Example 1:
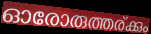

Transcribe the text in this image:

ഓരോരുത്തര്ക്കും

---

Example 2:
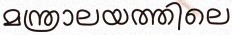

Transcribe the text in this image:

മന്ത്രാലയത്തിലെ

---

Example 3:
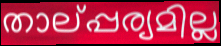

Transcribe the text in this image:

താല്പ്പര്യമില്ല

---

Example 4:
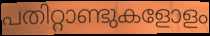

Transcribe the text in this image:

പതിറ്റാണ്ടുകളോളം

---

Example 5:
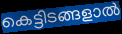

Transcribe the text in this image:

കെട്ടിടങ്ങളാൽ